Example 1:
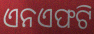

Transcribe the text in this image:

ଏନଏଫଟି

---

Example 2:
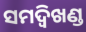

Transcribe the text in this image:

ସମଦ୍ବିଖଣ୍ଡ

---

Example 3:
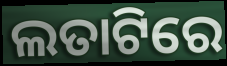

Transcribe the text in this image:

ଲତାଟିରେ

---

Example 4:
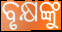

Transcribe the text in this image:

ବୃକ୍ଷଙ୍କୁ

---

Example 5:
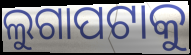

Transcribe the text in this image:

ଲୁଗାପଟାକୁ